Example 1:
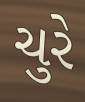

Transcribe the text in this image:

ચુરે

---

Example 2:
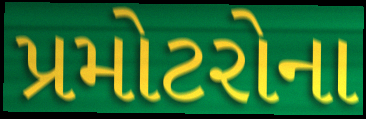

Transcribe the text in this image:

પ્રમોટરોના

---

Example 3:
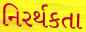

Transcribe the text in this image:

નિરર્થકતા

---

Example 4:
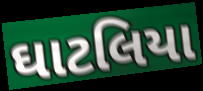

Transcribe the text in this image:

ઘાટલિયા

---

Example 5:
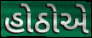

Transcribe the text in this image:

હોઠોએ